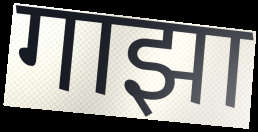
गाझा